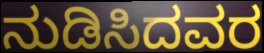
ನುಡಿಸಿದವರ